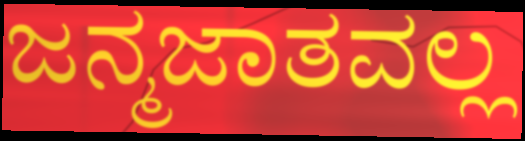
ಜನ್ಮಜಾತವಲ್ಲ